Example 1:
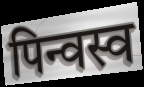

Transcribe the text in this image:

पिन्वस्व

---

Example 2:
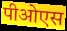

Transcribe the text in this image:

पीओएस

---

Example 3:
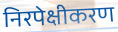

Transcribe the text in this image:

निरपेक्षीकरण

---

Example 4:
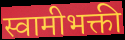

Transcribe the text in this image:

स्वामीभक्ती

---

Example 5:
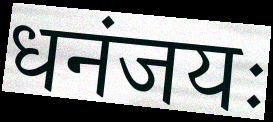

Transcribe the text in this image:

धनंजयः